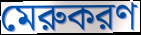
মেরুকরণ